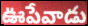
ఊపేవాడు